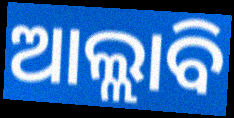
ଆଲ୍ଲାବି